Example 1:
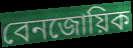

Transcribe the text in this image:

বেনজোয়িক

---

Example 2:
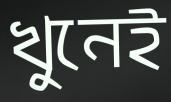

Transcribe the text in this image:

খুনেই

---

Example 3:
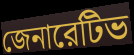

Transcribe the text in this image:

জেনারেটিভ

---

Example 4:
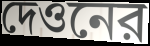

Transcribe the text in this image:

দেওনের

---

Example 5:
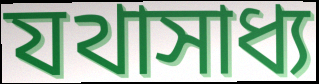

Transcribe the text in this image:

যথাসাধ্য